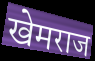
खेमराज